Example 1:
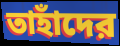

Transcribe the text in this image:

তাহাঁদের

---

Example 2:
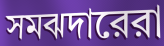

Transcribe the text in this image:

সমঝদারেরা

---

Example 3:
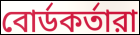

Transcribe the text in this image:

বোর্ডকর্তারা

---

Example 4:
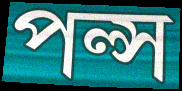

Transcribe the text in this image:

পল্স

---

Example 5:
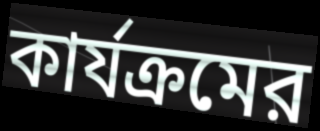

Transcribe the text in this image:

কার্যক্রমের